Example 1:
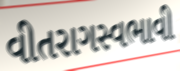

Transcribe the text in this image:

વીતરાગસ્વભાવી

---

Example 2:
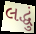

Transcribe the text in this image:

લદ્ધું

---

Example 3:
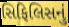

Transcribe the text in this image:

સિફિલિસનું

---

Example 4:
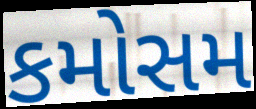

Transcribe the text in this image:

કમોસમ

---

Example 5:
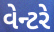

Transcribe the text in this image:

વેન્ટરે